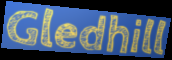
Gledhill